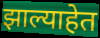
झाल्याहेत